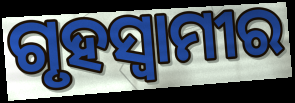
ଗୃହସ୍ୱାମୀର